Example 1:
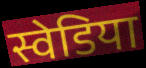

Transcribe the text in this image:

स्वेडिया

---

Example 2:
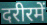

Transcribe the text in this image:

दरीरमें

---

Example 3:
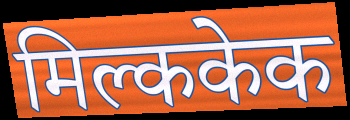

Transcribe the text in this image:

मिल्ककेक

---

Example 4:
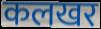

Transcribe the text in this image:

कलखर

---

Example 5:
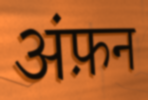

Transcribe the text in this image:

अंफ़न